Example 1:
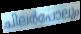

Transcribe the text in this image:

ചിലർപോലും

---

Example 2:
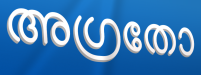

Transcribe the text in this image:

അഗ്രതോ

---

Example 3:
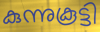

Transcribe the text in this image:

കുന്നുകൂട്ടി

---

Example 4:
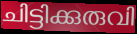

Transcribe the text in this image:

ചിട്ടിക്കുരുവി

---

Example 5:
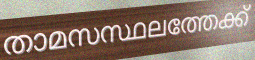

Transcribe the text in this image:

താമസസ്ഥലത്തേക്ക്